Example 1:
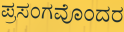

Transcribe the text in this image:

ಪ್ರಸಂಗವೊಂದರ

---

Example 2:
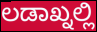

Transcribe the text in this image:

ಲಡಾಖ್ನಲ್ಲಿ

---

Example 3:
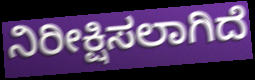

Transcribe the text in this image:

ನಿರೀಕ್ಷಿಸಲಾಗಿದೆ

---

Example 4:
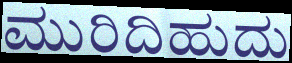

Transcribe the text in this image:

ಮುರಿದಿಹುದು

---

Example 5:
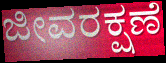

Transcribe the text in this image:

ಜೀವರಕ್ಷಣೆ